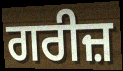
ਗਰੀਜ਼